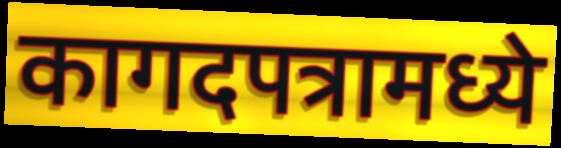
कागदपत्रामध्ये